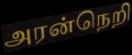
அரன்நெறி